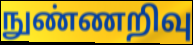
நுண்ணறிவு